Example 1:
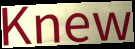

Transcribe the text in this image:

Knew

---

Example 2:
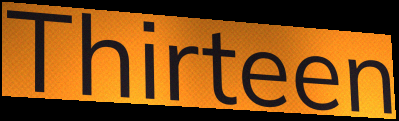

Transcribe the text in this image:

Thirteen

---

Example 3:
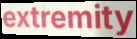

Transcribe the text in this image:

extremity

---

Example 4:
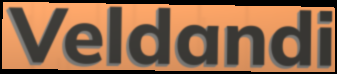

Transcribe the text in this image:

Veldandi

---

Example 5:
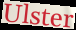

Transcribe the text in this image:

Ulster